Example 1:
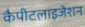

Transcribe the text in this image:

कैपीटलाइजेशन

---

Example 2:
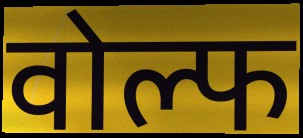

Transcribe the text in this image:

वोल्फ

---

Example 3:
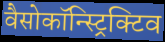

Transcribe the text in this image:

वैसोकॉन्स्ट्रिक्टिव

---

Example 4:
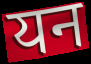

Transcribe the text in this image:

यन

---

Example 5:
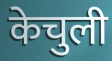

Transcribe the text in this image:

केचुली